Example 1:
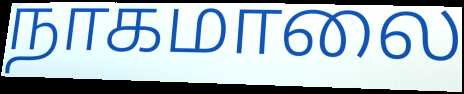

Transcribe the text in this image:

நாகமாலை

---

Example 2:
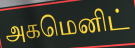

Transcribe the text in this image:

அகமெனிட்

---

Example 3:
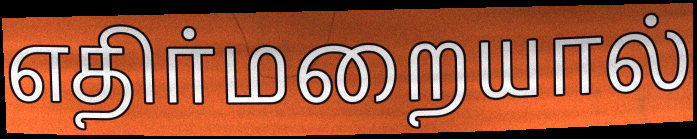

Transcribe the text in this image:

எதிர்மறையால்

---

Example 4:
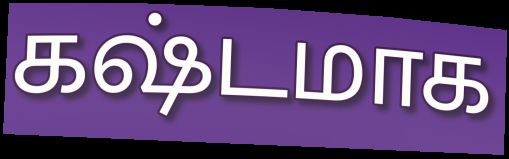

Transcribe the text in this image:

கஷ்டமாக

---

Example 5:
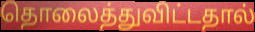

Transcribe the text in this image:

தொலைத்துவிட்டதால்